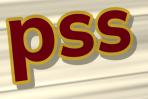
pss